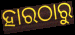
ହାରଠାରୁ